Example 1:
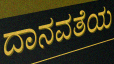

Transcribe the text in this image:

ದಾನವತೆಯ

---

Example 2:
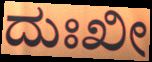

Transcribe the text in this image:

ದುಃಖೀ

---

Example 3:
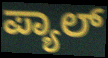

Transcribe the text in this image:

ಪ್ಯಾಲ್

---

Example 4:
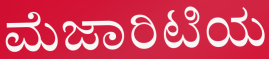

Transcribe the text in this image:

ಮೆಜಾರಿಟಿಯ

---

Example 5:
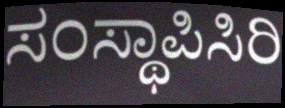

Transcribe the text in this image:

ಸಂಸ್ಥಾಪಿಸಿರಿ